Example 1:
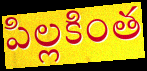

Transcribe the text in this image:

పిల్లకింత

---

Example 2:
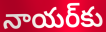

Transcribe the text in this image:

నాయర్‌కు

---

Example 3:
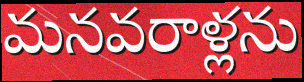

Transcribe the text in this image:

మనవరాళ్లను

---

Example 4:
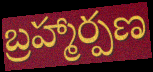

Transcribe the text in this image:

బ్రహ్మార్పణ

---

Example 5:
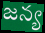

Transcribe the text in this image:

జన్య